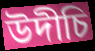
উদীচি